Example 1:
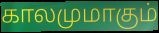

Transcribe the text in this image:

காலமுமாகும்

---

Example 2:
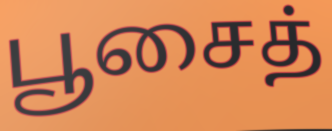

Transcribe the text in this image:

பூசைத்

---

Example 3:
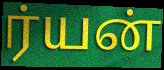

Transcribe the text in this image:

ர்யன்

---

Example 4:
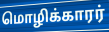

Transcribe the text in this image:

மொழிக்காரர்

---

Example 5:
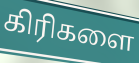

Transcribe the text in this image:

கிரிகளை